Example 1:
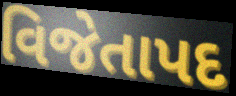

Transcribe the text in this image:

વિજેતાપદ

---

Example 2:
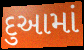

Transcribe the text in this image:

દુઆમાં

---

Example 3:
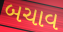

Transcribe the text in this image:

બચાવ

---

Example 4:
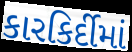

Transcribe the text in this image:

કારકિર્દીમાં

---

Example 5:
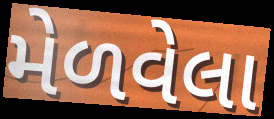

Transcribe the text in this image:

મેળવેલા